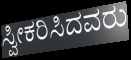
ಸ್ವೀಕರಿಸಿದವರು